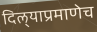
दिल्याप्रमाणेच